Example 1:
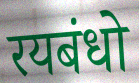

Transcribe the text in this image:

रयबंधो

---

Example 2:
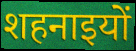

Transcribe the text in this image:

शहनाइयों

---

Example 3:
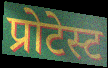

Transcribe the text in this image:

प्रोटेस्ट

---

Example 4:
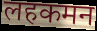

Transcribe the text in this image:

लहकमन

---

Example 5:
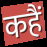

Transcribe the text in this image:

कहैं